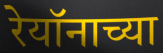
रेयॉनाच्या